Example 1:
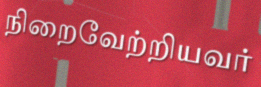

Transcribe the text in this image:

நிறைவேற்றியவர்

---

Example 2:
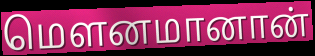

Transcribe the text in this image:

மௌனமானான்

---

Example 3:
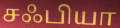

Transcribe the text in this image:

சஃபியா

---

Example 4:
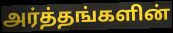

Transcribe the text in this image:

அர்த்தங்களின்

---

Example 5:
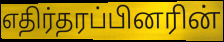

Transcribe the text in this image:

எதிர்தரப்பினரின்